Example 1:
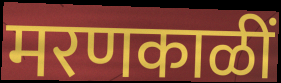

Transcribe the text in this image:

मरणकाळीं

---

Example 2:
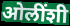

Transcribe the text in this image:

ओलींशी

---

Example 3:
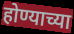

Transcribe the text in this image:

होण्याच्या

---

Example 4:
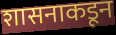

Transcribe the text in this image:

शासनाकडून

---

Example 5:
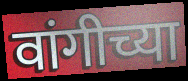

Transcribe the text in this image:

वांगीच्या